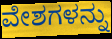
ವೇಶಗಳನ್ನು